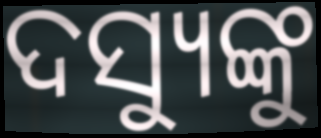
ଦସ୍ୟୁଙ୍କୁ